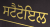
ਸਟੈਟੋਇਲ